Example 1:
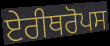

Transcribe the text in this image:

ਏਰੀਥਰੋਪਸ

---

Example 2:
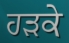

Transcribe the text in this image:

ਹੜਕੇ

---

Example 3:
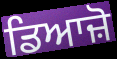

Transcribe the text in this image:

ਡਿਆਜ਼ੋ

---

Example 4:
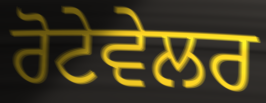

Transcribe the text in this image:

ਰੋਟੇਵੇਲਰ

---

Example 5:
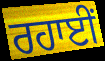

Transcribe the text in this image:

ਰਹਾਈਂ